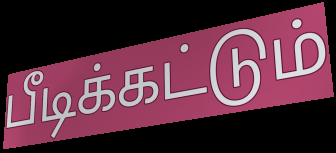
பீடிக்கட்டும்